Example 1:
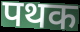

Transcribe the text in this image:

पथक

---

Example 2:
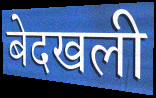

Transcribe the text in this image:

बेदखली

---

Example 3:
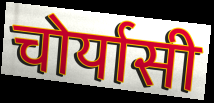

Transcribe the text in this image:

चोर्यासी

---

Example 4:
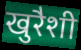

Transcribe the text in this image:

खुरैशी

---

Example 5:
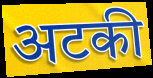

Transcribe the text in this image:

अटकी